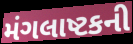
મંગલાષ્ટકની